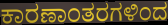
ಕಾರಣಾಂತರಗಳಿಂದ